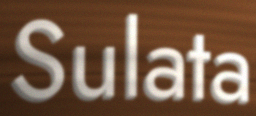
Sulata